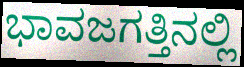
ಭಾವಜಗತ್ತಿನಲ್ಲಿ